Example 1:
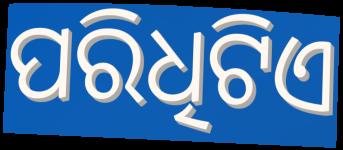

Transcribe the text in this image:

ପରିଧିଟିଏ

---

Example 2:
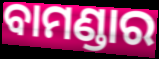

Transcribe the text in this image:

ବାମଣ୍ଡାର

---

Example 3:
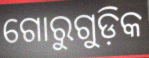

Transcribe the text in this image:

ଗୋରୁଗୁଡ଼ିକ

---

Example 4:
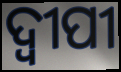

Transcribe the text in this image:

ଦ୍ୱୀପୀ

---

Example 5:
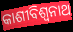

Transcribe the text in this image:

କାଶୀବିଶ୍ୱନାଥ